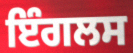
ਇੰਗਲਸ